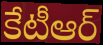
కేటీఆర్